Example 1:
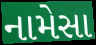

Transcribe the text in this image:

નામેસા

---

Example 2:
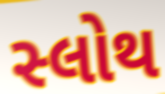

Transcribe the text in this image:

સ્લોથ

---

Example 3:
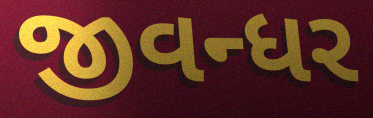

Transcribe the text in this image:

જીવન્ધર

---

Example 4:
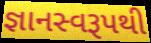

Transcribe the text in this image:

જ્ઞાનસ્વરૂપથી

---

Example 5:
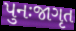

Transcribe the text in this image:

પુનઃજાગૃત